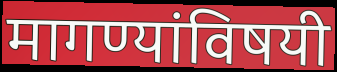
मागण्यांविषयी